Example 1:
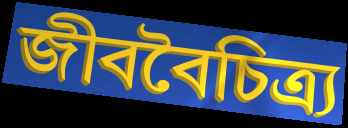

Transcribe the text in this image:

জীববৈচিত্র্য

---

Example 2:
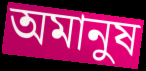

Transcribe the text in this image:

অমানুষ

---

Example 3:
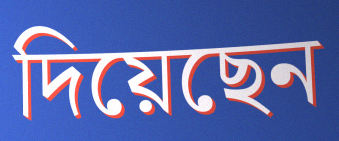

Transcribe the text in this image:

দিয়েছেন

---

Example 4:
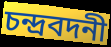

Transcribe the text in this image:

চন্দ্রবদনী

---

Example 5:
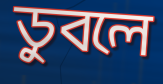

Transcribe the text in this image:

ডুবলে